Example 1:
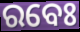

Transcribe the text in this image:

ରବେଃ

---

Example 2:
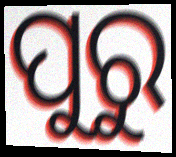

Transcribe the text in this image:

ପୁରୁ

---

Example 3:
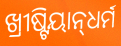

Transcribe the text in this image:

ଖ୍ରୀଷ୍ଟିୟାନ୍‌ଧର୍ମ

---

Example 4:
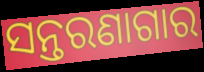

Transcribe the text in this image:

ସନ୍ତରଣାଗାର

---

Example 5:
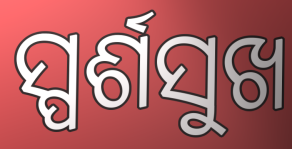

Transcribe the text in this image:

ସ୍ପର୍ଶସୁଖ